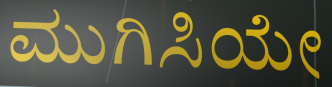
ಮುಗಿಸಿಯೇ